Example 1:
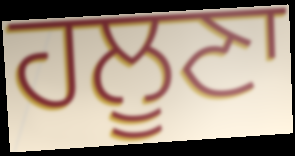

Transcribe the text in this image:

ਹਲੂਣਾ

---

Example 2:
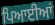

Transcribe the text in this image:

ਪਿਆਈਆਂ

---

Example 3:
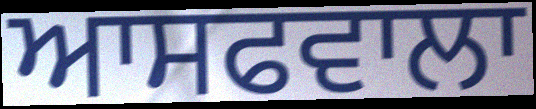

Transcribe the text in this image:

ਆਸਫਵਾਲਾ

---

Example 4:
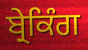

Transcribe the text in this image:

ਬ੍ਰੇਕਿੰਗ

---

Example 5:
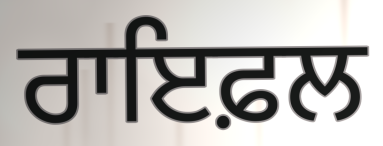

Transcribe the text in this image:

ਰਾਇਫ਼ਲ